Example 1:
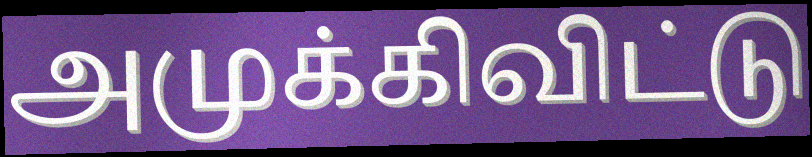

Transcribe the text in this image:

அமுக்கிவிட்டு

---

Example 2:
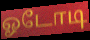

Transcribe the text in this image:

ஓடோடி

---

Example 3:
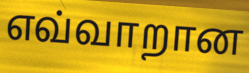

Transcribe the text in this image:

எவ்வாறான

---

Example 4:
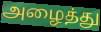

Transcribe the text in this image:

அழைத்து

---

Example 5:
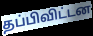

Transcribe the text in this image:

தப்பிவிட்டன